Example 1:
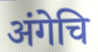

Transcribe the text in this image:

अंगेचि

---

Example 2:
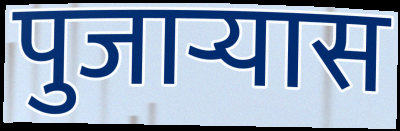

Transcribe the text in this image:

पुजाऱ्यास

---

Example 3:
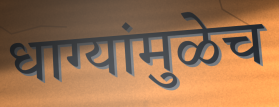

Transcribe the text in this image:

धाग्यांमुळेच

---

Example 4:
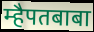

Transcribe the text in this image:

म्हैपतबाबा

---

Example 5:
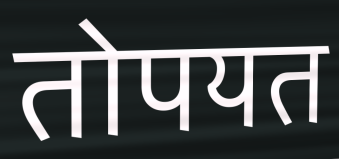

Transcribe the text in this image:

तोपयत